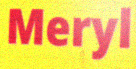
Meryl